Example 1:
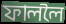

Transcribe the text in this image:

ফাললৈ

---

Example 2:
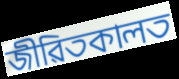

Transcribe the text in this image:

জীৱিতকালত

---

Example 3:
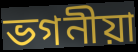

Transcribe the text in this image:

ভগনীয়া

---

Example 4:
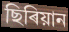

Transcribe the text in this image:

ছিৰিয়ান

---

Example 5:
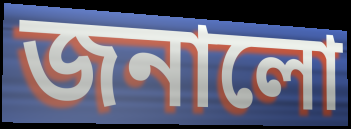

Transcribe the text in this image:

জনালো